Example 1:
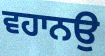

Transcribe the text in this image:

ਵਹਾਨਉ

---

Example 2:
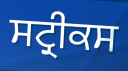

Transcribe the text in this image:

ਸਟ੍ਰੀਕਸ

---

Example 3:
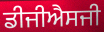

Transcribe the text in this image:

ਡੀਜੀਐਸਜੀ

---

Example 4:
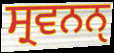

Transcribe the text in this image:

ਸ੍ਰਵਨਨੑ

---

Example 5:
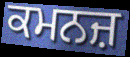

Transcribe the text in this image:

ਕਮਨਜ਼